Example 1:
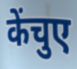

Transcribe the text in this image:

केंचुए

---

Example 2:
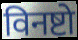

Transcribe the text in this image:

विनष्टो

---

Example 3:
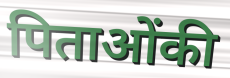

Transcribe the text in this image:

पिताओंकी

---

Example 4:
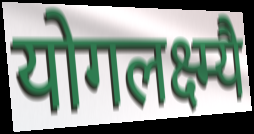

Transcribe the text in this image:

योगलक्ष्म्यै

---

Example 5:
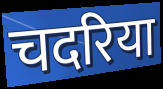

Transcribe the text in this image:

चदरिया